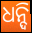
ଧନ୍ଦି